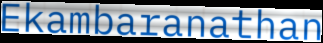
Ekambaranathan